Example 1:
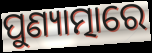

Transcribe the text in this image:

ପୁଣ୍ୟାତ୍ମାରେ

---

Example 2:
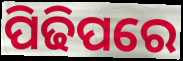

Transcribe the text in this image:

ପିଢିପରେ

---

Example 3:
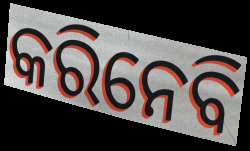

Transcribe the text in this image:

କରିନେବି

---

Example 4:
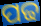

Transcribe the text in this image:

ପଢ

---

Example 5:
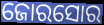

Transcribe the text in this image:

ଜୋରସୋର